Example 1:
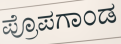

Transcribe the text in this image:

ಪ್ರೊಪಗಾಂಡ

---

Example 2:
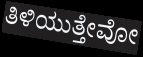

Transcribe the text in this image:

ತಿಳಿಯುತ್ತೇವೋ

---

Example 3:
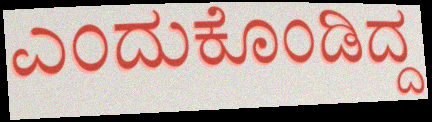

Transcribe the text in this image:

ಎಂದುಕೊಂಡಿದ್ದ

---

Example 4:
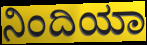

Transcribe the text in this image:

ನಿಂದಿಯಾ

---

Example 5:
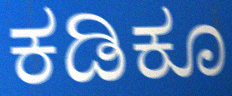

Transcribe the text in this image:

ಕಡಿಕೂ